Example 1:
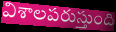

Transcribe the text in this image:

విశాలపరుస్తుంది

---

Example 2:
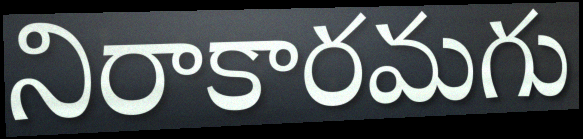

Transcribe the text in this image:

నిరాకారమగు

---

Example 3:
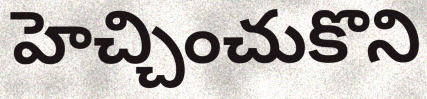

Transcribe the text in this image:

హెచ్చించుకొని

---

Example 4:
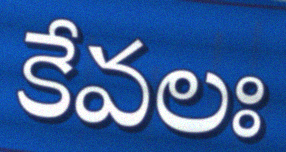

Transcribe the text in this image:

కేవలః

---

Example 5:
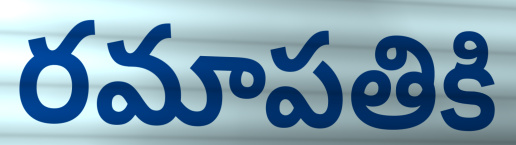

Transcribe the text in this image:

రమాపతికి